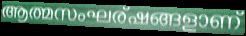
ആത്മസംഘര്ഷങ്ങളാണ്